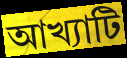
আখ্যাটি